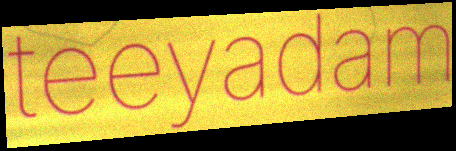
teeyadam